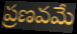
ప్రణవమే